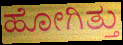
ಹೋಗಿತ್ತು